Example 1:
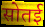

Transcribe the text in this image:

सोतई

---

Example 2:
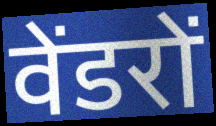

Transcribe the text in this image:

वेंडरों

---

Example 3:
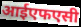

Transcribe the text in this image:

आईएफएसी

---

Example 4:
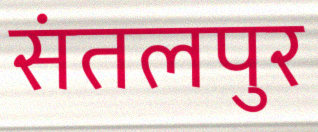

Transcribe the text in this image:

संतलपुर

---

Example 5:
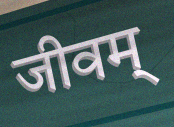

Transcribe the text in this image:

जीवम्